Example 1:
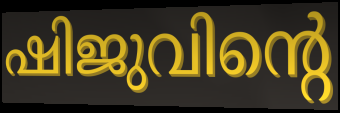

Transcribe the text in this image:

ഷിജുവിന്റെ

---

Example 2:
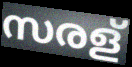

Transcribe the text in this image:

സരള്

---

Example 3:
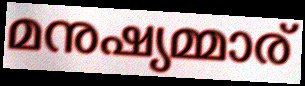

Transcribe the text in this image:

മനുഷ്യമ്മാര്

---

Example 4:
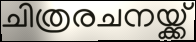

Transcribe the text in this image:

ചിത്രരചനയ്ക്ക്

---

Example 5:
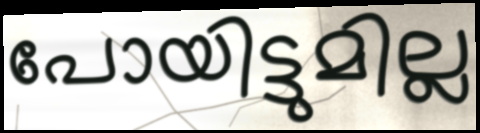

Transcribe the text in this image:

പോയിട്ടുമില്ല